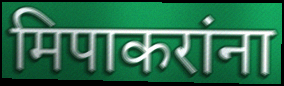
मिपाकरांना